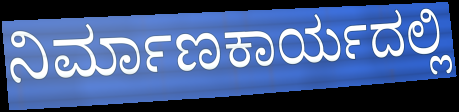
ನಿರ್ಮಾಣಕಾರ್ಯದಲ್ಲಿ